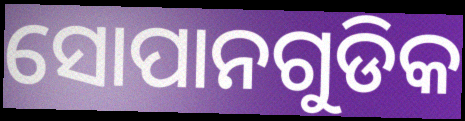
ସୋପାନଗୁଡିକ